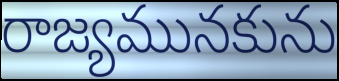
రాజ్యమునకును